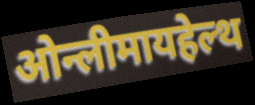
ओन्लीमायहेल्थ